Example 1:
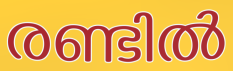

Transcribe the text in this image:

രണ്ടിൽ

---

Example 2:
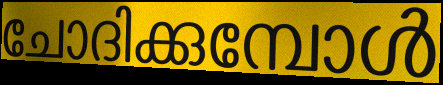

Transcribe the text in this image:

ചോദിക്കുമ്പോൾ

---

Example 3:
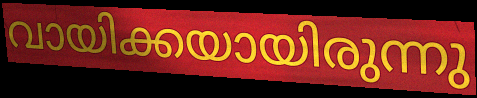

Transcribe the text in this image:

വായിക്കയായിരുന്നു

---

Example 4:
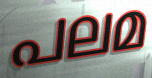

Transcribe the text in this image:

പലമ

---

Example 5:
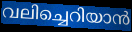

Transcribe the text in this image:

വലിച്ചെറിയാൻ